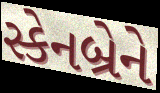
સ્કેનબ્રેને